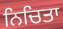
ਨਿਚਿਤਾ